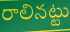
రాలినట్టు